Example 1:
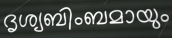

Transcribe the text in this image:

ദൃശ്യബിംബമായും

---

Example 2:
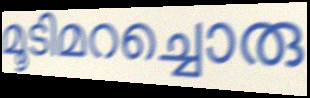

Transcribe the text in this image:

മൂടിമറച്ചൊരു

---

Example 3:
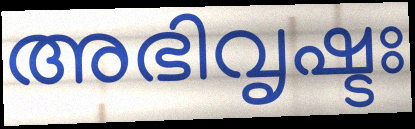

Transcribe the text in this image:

അഭിവൃഷ്ടഃ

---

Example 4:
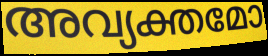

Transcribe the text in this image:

അവ്യക്തമോ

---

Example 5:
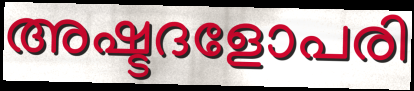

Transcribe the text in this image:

അഷ്ടദളോപരി